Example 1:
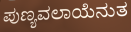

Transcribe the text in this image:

ಪುಣ್ಯವಲಾಯೆನುತ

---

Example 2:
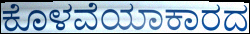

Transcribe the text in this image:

ಕೊಳವೆಯಾಕಾರದ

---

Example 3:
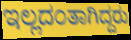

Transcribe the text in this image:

ಇಲ್ಲದಂತಾಗಿದ್ದರು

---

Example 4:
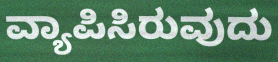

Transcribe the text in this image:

ವ್ಯಾಪಿಸಿರುವುದು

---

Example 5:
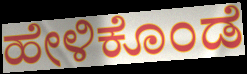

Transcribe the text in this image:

ಹೇಳಿಕೊಂಡೆ